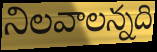
నిలవాలన్నది